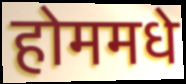
होममधे